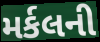
મર્કલની